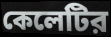
কেলেটির